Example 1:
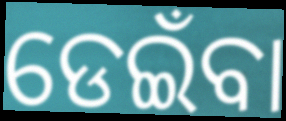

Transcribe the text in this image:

ଡେଇଁବା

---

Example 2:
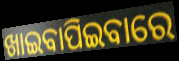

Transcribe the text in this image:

ଖାଇବାପିଇବାରେ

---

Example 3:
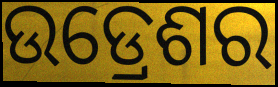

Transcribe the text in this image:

ଉଡ୍ରେଶର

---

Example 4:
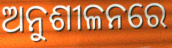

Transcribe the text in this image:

ଅନୁଶୀଳନରେ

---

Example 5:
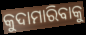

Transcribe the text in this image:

କୁଦାମାରିବାକୁ